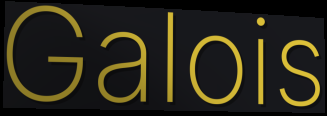
Galois